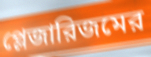
প্লেজারিজমের